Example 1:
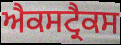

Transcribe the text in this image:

ਐਕਸਟ੍ਰੈਕਸ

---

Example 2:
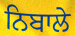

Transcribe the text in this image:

ਨਿਬਾਲੇ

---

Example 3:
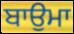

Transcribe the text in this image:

ਬਾਉਮਾ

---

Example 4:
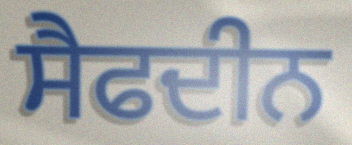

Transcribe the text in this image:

ਸੈਫਦੀਨ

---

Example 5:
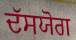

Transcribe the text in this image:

ਦੱਸਯੋਗ